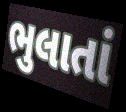
ભુલાતાં